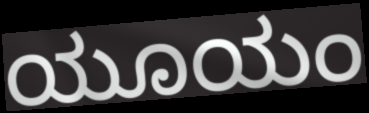
ಯೂಯಂ